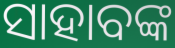
ସାହାବଙ୍କ